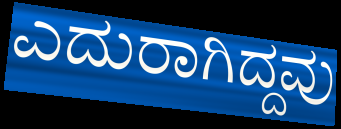
ಎದುರಾಗಿದ್ದವು